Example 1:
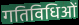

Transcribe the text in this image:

गतिविधिओं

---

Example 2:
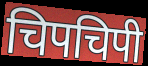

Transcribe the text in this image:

चिपचिपी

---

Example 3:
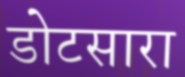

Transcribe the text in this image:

डोटसारा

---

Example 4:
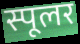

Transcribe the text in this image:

स्पूलर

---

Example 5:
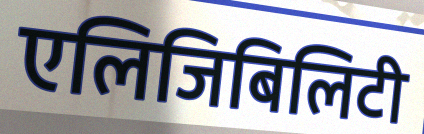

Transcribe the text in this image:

एलिजिबिलिटी